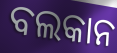
ବଲକାନ